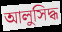
আলুসিদ্ধ